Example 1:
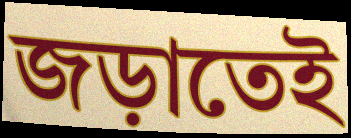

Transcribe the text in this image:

জড়াতেই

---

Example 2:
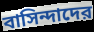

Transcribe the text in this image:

বাসিন্দাদের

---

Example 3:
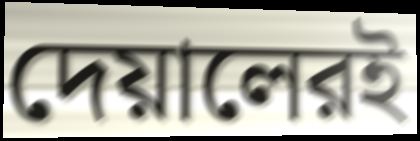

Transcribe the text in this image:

দেয়ালেরই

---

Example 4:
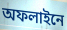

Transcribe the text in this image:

অফলাইনে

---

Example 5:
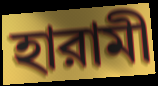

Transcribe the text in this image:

হারামী